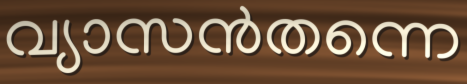
വ്യാസൻതന്നെ